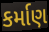
કર્માણ